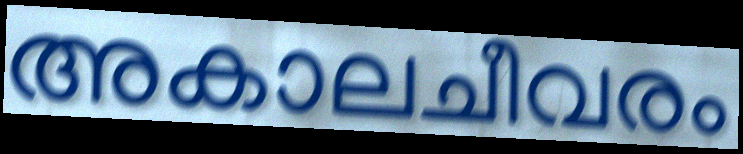
അകാലചീവരം